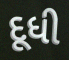
દૂધી